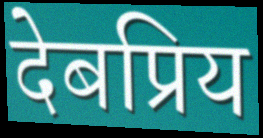
देबप्रिय